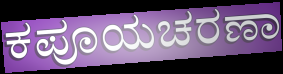
ಕಪೂಯಚರಣಾ